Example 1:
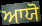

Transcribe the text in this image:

ਆਯੋ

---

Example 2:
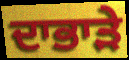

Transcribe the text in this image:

ਦਾਭਾੜੇ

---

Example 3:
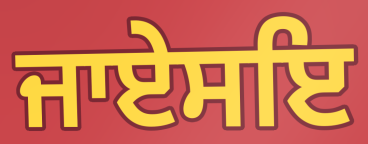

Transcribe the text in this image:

ਜਾਏਸਇ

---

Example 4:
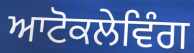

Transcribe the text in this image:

ਆਟੋਕਲੇਵਿੰਗ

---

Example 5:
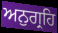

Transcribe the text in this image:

ਅਨੁਗ੍ਰਹਿ